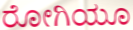
ರೋಗಿಯೂ